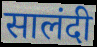
सालंदी